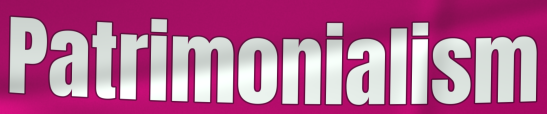
Patrimonialism